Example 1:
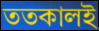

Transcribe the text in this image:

ততকালই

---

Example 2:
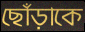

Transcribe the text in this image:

ছোঁড়াকে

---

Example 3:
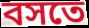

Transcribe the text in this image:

বসতে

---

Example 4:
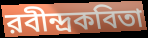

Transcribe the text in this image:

রবীন্দ্রকবিতা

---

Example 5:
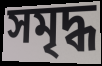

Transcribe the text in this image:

সমৃদ্ধ